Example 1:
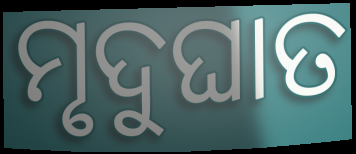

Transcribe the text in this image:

ମୃଦୁଘାତ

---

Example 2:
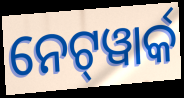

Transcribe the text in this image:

ନେଟ୍‌ୱାର୍କ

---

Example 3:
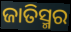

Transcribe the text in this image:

ଜାତିସ୍ମର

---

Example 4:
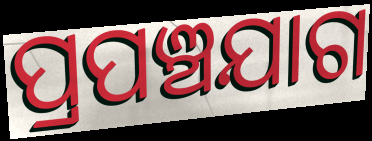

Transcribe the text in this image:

ପ୍ରପଞ୍ଚଯାଗ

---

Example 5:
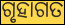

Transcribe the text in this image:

ଗୃହାଗତ